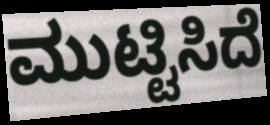
ಮುಟ್ಟಿಸಿದೆ